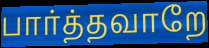
பார்த்தவாறே